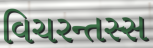
વિચરન્તસ્સ